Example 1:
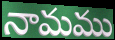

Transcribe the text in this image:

నామము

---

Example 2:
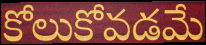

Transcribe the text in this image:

కోలుకోవడమే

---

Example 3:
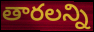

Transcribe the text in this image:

తారలన్ని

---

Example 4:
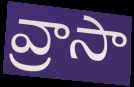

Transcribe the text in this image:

వ్రాసా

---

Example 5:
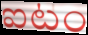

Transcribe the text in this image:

ఐటం